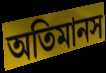
অতিমানস